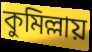
কুমিল্লায়